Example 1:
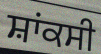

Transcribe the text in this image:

ਸ਼ਾਂਕਸੀ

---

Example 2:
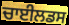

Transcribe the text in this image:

ਚਾਈਲਡਸ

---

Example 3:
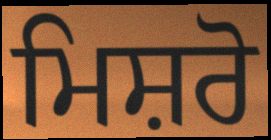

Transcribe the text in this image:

ਮਿਸ਼ਰੋ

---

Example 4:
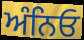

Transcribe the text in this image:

ਅੰਨਿਓ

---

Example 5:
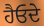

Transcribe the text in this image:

ਹੈਓਦੇ